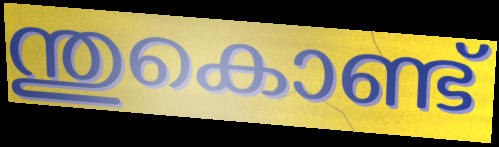
ന്തുകൊണ്ട്